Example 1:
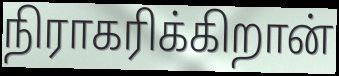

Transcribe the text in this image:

நிராகரிக்கிறான்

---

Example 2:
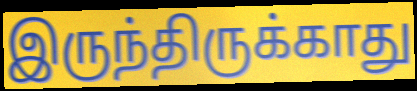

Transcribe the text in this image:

இருந்திருக்காது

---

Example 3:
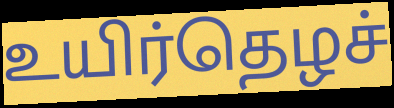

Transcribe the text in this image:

உயிர்தெழச்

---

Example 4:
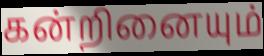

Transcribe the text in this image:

கன்றினையும்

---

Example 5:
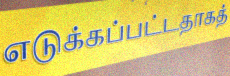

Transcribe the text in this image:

எடுக்கப்பட்டதாகத்